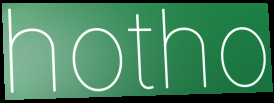
hotho